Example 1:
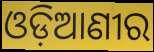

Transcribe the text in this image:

ଓଡ଼ିଆଣୀର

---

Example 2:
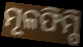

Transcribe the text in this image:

ମୂଳଫିମ୍ପି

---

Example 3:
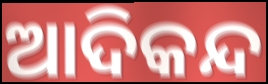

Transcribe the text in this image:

ଆଦିକନ୍ଦ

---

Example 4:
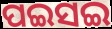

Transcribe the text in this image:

ପଇସଇ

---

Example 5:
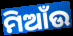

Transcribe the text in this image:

ମିଆଁଉ